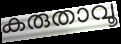
കരുതാവൂ